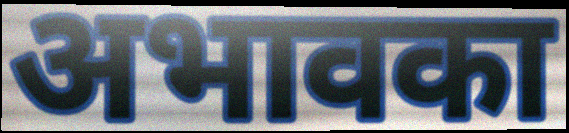
अभावका